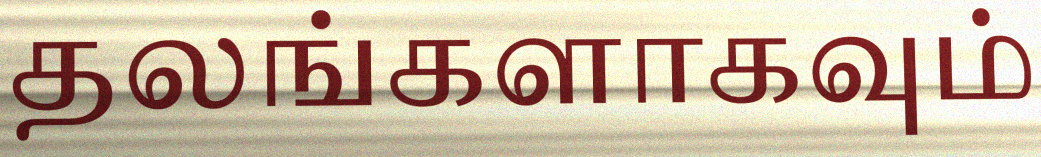
தலங்களாகவும்